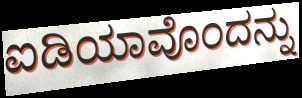
ಐಡಿಯಾವೊಂದನ್ನು